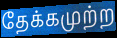
தேக்கமுற்ற